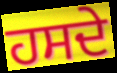
ਹਸਦੇ